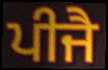
ਪੀਜੈ